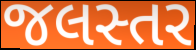
જલસ્તર